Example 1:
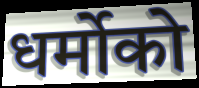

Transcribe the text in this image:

धर्मोको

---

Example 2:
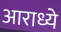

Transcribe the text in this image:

आराध्ये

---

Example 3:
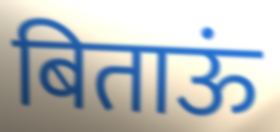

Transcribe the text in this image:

बिताऊं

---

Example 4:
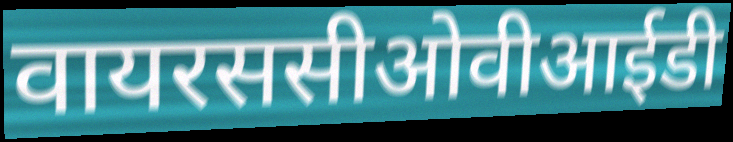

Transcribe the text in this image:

वायरससीओवीआईडी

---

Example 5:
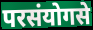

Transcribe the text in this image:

परसंयोगसे